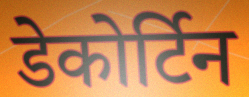
डेकोर्टिन